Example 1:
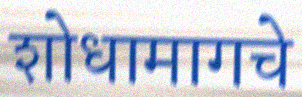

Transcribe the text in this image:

शोधामागचे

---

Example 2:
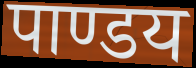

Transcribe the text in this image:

पाण्डय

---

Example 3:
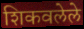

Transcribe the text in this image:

शिकवलेले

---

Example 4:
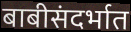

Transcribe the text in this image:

बाबीसंदर्भात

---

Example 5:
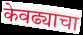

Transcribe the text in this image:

केवढ्याचा